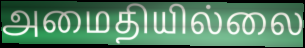
அமைதியில்லை